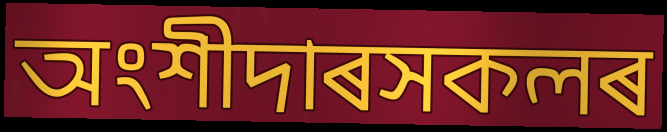
অংশীদাৰসকলৰ